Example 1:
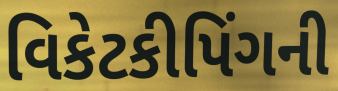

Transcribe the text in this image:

વિકેટકીપિંગની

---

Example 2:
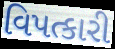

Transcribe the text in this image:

વિપત્કારી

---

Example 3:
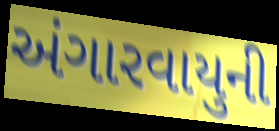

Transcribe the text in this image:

અંગારવાયુની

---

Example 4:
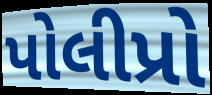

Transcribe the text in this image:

પોલીપ્રો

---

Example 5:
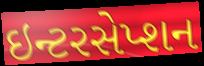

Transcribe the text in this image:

ઇન્ટરસેપ્શન